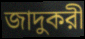
জাদুকরী